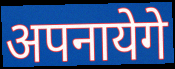
अपनायेगे